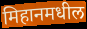
मिहानमधील